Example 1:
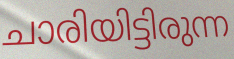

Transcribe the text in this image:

ചാരിയിട്ടിരുന്ന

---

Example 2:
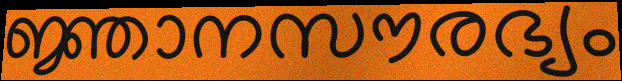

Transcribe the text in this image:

ജ്ഞാനസൗരഭ്യം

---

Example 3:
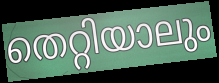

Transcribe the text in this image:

തെറ്റിയാലും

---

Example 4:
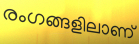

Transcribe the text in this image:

രംഗങ്ങളിലാണ്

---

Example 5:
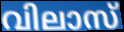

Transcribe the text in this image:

വിലാസ്